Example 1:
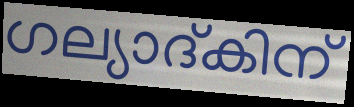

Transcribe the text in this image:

ഗല്യാദ്കിന്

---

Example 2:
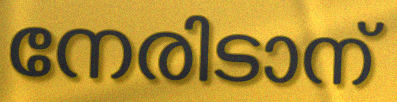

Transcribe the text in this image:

നേരിടാന്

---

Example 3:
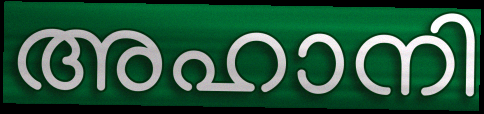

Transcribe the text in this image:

അഹാനി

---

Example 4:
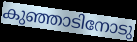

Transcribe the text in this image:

കുഞ്ഞാടിനോടു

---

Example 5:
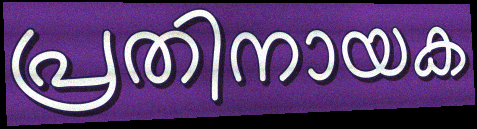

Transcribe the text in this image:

പ്രതിനായക